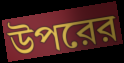
উপরের